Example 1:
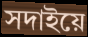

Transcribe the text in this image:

সদাইয়ে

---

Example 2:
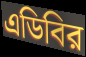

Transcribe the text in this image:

এডিবির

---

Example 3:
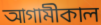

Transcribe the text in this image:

আগামীকাল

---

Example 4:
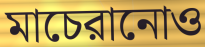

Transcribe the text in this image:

মাচেরানোও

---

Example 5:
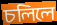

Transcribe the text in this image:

চলিলে